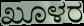
ಖೂಳರ